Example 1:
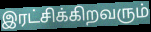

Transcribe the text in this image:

இரட்சிக்கிறவரும்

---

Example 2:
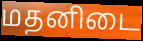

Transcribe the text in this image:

மதனிடை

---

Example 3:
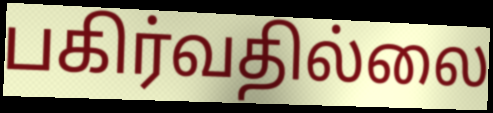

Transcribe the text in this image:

பகிர்வதில்லை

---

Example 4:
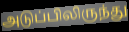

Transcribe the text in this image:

அடுப்பிலிருந்து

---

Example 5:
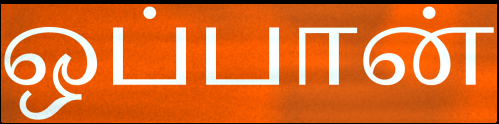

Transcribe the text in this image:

ஒப்பான்